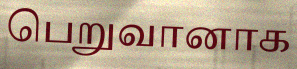
பெறுவானாக